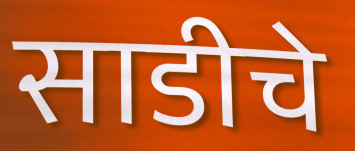
साडीचे